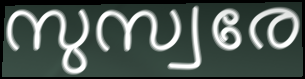
സുസ്വരേ